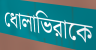
ধোলাভিরাকে